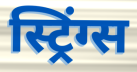
स्ट्रिंग्स